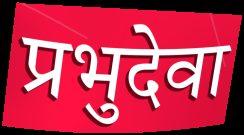
प्रभुदेवा